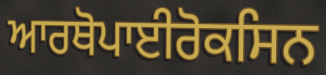
ਆਰਥੋਪਾਈਰੋਕਸਿਨ